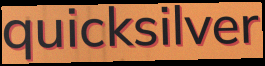
quicksilver